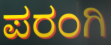
ಪರಂಗಿ